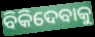
ବିକିଦେବାକୁ